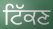
ਟਿੱਕਣ